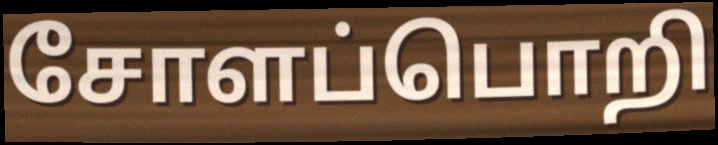
சோளப்பொறி